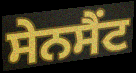
ਸੇਨਸੈਂਟ